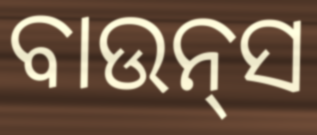
ବାଉନ୍‌ସ